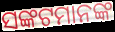
ସଙ୍କଟମାନଙ୍କ